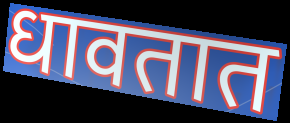
धावतात